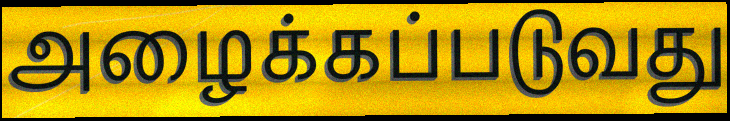
அழைக்கப்படுவது